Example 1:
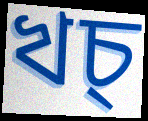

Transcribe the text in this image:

খচ্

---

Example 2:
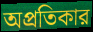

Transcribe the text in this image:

অপ্রতিকার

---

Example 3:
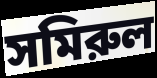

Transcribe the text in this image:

সমিরুল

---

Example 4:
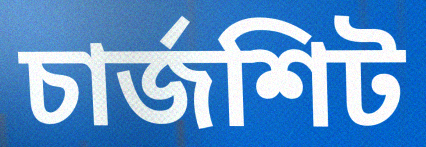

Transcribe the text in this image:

চার্জশিট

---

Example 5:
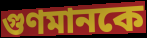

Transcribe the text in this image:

গুণমানকে